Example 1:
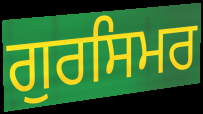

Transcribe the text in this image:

ਗੁਰਸਿਮਰ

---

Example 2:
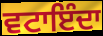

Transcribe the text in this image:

ਵਟਾਇੰਦਾ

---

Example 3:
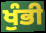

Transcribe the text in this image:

ਖੁੰਭੀ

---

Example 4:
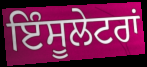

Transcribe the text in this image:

ਇੰਸੂਲੇਟਰਾਂ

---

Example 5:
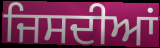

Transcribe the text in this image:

ਜਿਸਦੀਆਂ